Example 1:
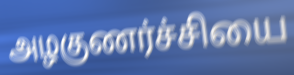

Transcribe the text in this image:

அழகுணர்ச்சியை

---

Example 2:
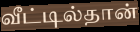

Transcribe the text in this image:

வீட்டில்தான்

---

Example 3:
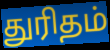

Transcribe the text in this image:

துரிதம்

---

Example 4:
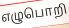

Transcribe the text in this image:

எழுபொறி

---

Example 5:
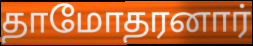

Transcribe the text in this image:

தாமோதரனார்